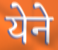
येने